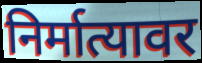
निर्मात्यावर